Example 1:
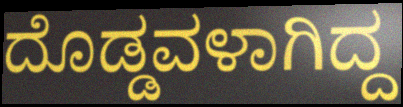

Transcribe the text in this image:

ದೊಡ್ಡವಳಾಗಿದ್ದ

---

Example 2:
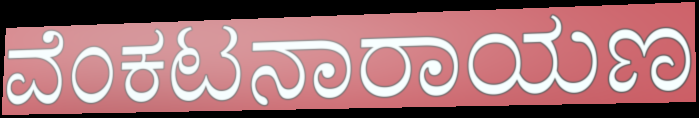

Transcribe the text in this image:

ವೆಂಕಟನಾರಾಯಣ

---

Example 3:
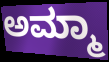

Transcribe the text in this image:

ಅಮ್ಮಾ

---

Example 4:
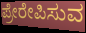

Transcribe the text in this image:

ಪ್ರೇರೇಪಿಸುವ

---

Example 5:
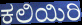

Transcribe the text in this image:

ಕಲಿಯಿರಿ